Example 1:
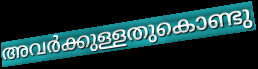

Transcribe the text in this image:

അവർക്കുള്ളതുകൊണ്ടു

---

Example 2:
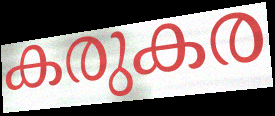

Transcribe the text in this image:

കരുകര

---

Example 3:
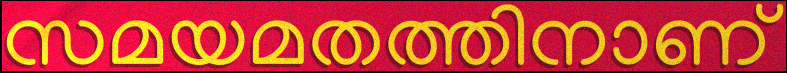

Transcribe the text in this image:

സമയമതത്തിനാണ്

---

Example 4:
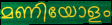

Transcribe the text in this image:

മണിയോളം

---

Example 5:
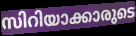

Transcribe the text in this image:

സിറിയാക്കാരുടെ